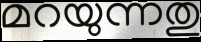
മറയുന്നതു